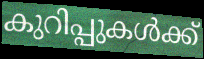
കുറിപ്പുകൾക്ക്